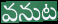
వనుట